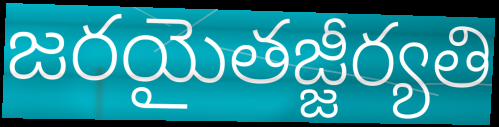
జరయైతజ్జీర్యతి